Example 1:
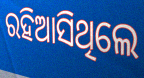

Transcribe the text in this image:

ରହିଆସିଥିଲେ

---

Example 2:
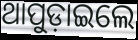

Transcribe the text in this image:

ଥାପୁଡ଼ାଇଲେ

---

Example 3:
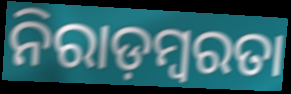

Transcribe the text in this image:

ନିରାଡ଼ମ୍ବରତା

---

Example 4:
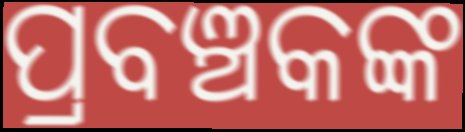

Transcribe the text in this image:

ପ୍ରବଞ୍ଚକଙ୍କ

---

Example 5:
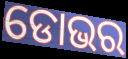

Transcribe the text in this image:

ଡୋଭର